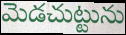
మెడచుట్టును